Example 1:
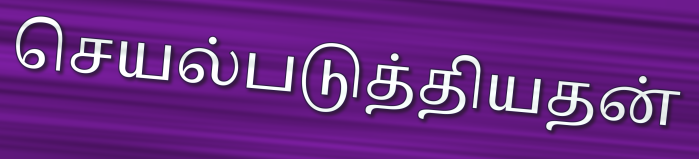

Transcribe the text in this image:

செயல்படுத்தியதன்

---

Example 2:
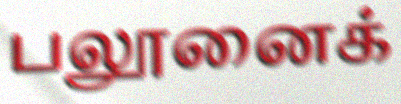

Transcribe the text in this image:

பலூனைக்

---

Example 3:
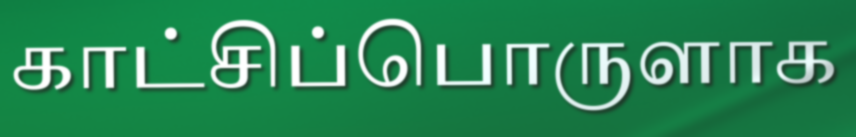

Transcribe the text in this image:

காட்சிப்பொருளாக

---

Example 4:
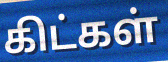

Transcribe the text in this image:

கிட்கள்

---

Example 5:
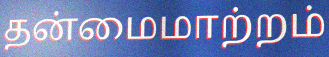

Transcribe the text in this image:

தன்மைமாற்றம்